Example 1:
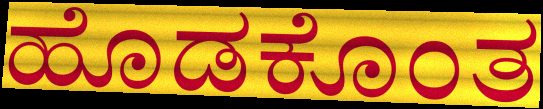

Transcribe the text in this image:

ಹೊಡಕೊಂತ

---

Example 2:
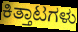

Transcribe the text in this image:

ಕಿತ್ತಾಟಗಳು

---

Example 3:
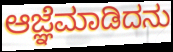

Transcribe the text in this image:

ಆಜ್ಞೆಮಾಡಿದನು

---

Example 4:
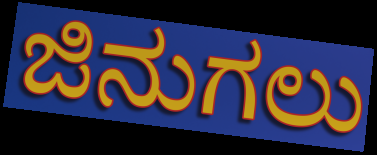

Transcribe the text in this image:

ಜಿನುಗಲು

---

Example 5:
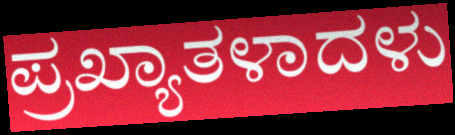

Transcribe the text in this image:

ಪ್ರಖ್ಯಾತಳಾದಳು